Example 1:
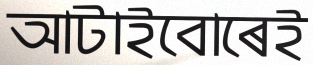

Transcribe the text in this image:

আটাইবোৰেই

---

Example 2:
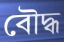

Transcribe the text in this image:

বৌদ্ধ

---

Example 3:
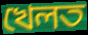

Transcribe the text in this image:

খেলত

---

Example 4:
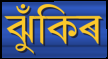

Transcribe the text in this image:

ঝুঁকিৰ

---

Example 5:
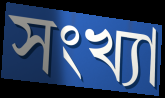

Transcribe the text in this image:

সংখ্যা